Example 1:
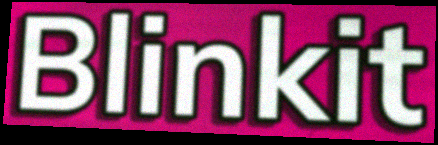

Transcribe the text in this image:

Blinkit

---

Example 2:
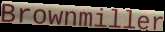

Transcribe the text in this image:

Brownmiller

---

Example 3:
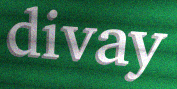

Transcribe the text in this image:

divay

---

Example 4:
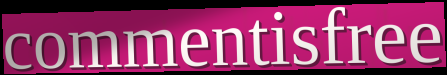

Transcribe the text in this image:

commentisfree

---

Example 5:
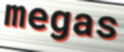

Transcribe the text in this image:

megas